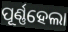
ପୂର୍ଣ୍ଣହେଲା